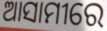
ଆସାମୀରେ